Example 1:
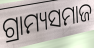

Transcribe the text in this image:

ଗ୍ରାମ୍ୟସମାଜ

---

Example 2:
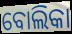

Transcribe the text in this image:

ବୋଲିକା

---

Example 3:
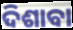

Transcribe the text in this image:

ଦିଶାବା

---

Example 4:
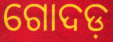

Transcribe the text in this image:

ଗୋଦଡ଼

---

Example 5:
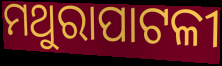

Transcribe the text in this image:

ମଥୁରାପାଟଳୀ